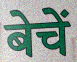
बेचें